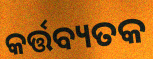
କର୍ତ୍ତବ୍ୟତକ